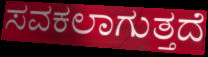
ಸವಕಲಾಗುತ್ತದೆ